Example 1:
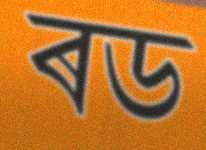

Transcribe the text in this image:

ৰড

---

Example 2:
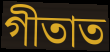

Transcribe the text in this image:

গীতাত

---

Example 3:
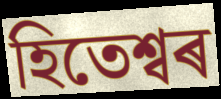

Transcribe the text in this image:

হিতেশ্বৰ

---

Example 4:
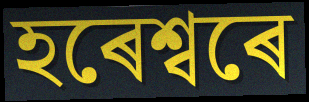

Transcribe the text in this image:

হৰেশ্বৰে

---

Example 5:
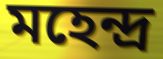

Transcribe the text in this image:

মহেন্দ্ৰ